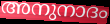
അനുനാദം